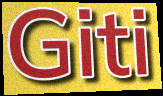
Giti